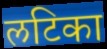
लटिका